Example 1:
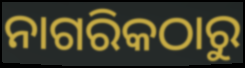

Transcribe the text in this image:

ନାଗରିକଠାରୁ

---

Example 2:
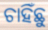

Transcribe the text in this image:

ଚାହିଁଛୁ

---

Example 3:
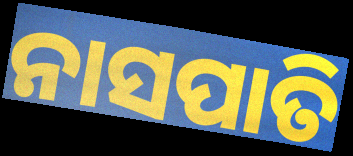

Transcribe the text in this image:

ନାସପାତି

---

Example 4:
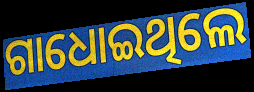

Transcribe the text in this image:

ଗାଧୋଇଥିଲେ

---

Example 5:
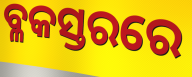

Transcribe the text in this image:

ବ୍ଳକସ୍ତରରେ